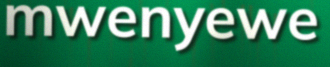
mwenyewe